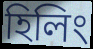
হিলিং